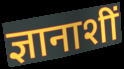
ज्ञानाशीं